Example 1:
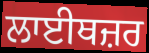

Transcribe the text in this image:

ਲਾਈਥਜ਼ਰ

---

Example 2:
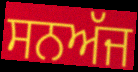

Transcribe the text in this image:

ਸਨਅੱਜ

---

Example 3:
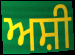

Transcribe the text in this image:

ਅਸ਼ੀ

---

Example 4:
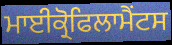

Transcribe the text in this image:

ਮਾਈਕ੍ਰੋਫਿਲਾਮੈਂਟਸ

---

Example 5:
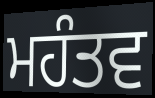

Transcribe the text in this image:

ਮਹੰਤਵ